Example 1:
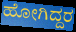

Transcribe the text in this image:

ಹೋಗಿದ್ದರ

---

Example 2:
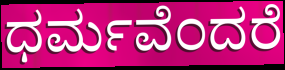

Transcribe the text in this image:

ಧರ್ಮವೆಂದರೆ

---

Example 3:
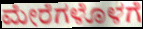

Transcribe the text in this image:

ಮೇರೆಗಳೊಳಗೆ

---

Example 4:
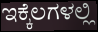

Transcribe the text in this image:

ಇಕ್ಕೆಲಗಳಲ್ಲಿ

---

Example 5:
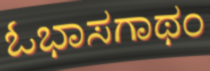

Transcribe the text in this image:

ಓಭಾಸಗಾಥಂ